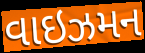
વાઇઝમન